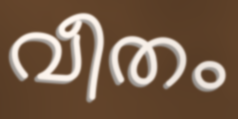
വീതം